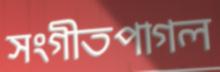
সংগীতপাগল